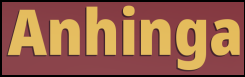
Anhinga